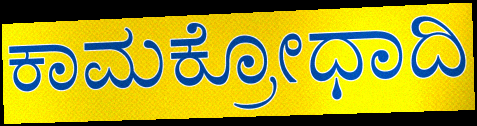
ಕಾಮಕ್ರೋಧಾದಿ